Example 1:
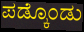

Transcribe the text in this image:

ಪಡ್ಕೊಂಡು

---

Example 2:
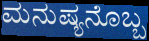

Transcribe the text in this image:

ಮನುಷ್ಯನೊಬ್ಬ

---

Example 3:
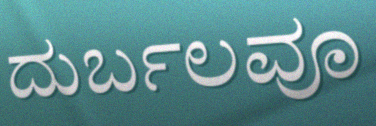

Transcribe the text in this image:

ದುರ್ಬಲವೂ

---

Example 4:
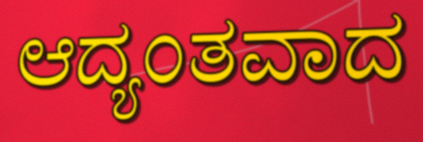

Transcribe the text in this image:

ಆದ್ಯಂತವಾದ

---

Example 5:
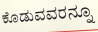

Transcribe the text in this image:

ಕೊಡುವವರನ್ನೂ